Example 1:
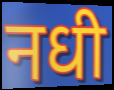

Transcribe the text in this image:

नधी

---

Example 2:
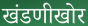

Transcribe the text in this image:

खंडणीखोर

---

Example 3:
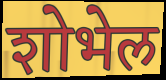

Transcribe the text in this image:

शोभेल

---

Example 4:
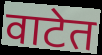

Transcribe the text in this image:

वाटेत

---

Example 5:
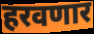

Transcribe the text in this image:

हरवणार